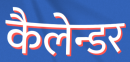
कैलेन्डर